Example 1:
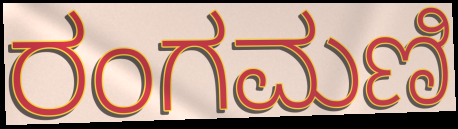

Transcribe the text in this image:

ರಂಗಮಣಿ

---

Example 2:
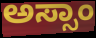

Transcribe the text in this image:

ಅಸ್ಸಾಂ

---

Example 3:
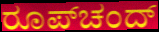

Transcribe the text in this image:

ರೂಪ್‌ಚಂದ್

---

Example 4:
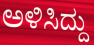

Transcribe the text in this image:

ಅಳಿಸಿದ್ದು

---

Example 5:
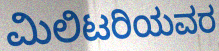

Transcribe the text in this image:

ಮಿಲಿಟರಿಯವರ